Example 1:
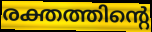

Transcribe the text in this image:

രക്തത്തിന്റെ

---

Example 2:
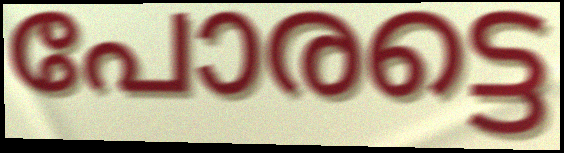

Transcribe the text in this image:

പോരട്ടെ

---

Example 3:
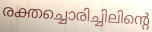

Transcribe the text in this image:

രക്തച്ചൊരിച്ചിലിന്റെ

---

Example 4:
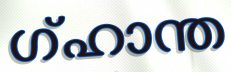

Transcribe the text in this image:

ഗ്ഹാന്ത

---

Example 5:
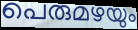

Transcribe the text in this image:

പെരുമഴയും